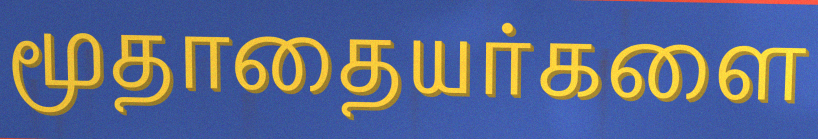
மூதாதையர்களை